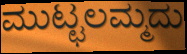
ಮುಟ್ಟಲಮ್ಮದು